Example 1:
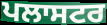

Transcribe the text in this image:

ਪਲਾਸਟਰ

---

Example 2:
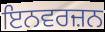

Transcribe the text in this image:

ਇਨਵਰਜ਼ਨ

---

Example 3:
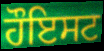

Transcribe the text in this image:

ਹੌਇਸਟ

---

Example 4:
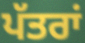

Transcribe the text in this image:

ਪੱਤਰਾਂ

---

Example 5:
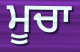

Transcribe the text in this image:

ਮੂਚਾ